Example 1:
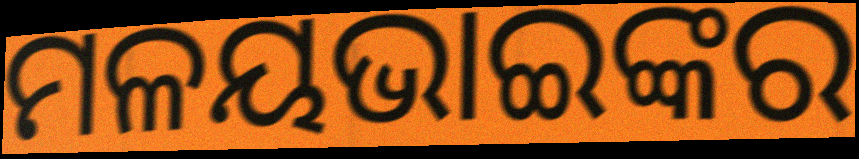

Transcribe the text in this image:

ମଳୟଭାଇଙ୍କର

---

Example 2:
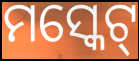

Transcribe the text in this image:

ମସ୍କେଟ୍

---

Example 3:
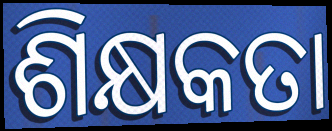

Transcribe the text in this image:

ଶିକ୍ଷକତା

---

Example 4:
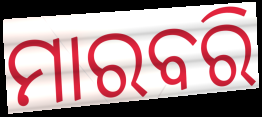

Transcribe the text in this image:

ମାରବରି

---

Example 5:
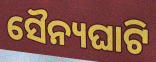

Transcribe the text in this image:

ସୈନ୍ୟଘାଟି